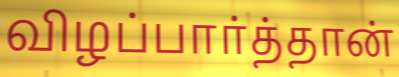
விழப்பார்த்தான்